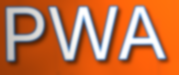
PWA